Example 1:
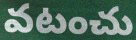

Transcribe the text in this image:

వటంచు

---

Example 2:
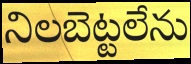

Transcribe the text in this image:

నిలబెట్టలేను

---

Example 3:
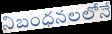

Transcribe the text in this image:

నిబంధనలలోనే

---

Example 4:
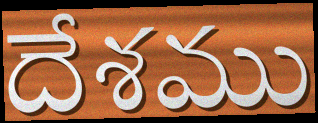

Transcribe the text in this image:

దేశము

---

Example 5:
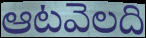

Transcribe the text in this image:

ఆటవెలది